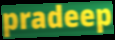
pradeep